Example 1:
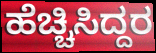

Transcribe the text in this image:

ಹೆಚ್ಚಿಸಿದ್ದರ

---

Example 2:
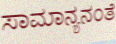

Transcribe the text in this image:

ಸಾಮಾನ್ಯನಂತೆ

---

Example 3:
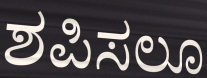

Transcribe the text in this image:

ಶಪಿಸಲೂ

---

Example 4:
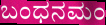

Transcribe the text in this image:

ಬಂಧನಮಂ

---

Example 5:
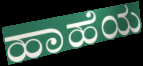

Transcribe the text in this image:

ಹಾಹೆಯ